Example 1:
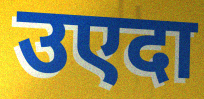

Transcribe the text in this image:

उएदा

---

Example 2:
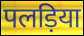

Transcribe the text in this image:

पलड़िया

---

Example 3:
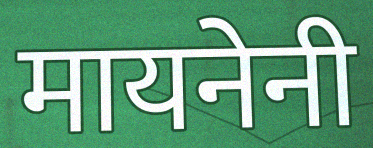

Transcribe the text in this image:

मायनेनी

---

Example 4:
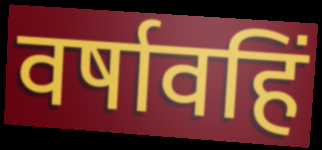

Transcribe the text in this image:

वर्षावहिं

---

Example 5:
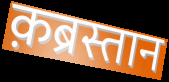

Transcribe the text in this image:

क़ब्रस्तान